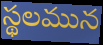
స్థలమున